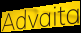
Advaita